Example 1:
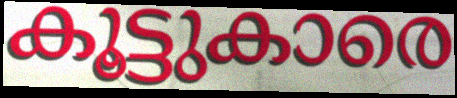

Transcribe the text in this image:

കൂട്ടുകാരെ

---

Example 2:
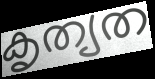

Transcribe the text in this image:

കൃത്യത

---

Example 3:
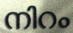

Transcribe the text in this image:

നിറം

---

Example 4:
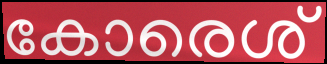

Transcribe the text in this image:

കോരെശ്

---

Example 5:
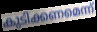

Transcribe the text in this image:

കുടിക്കണമെന്ന്